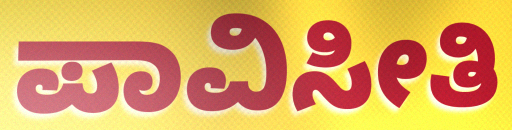
ಪಾವಿಸೀತಿ